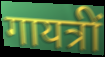
गायत्रीं